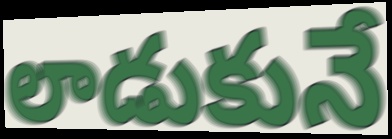
లాడుకునే